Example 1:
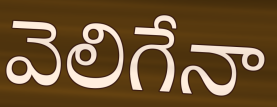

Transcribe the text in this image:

వెలిగేనా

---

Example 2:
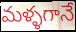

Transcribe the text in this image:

మళ్ళగానే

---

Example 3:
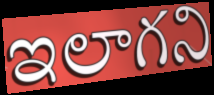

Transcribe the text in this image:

ఇలాగని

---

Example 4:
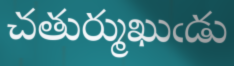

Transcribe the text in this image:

చతుర్ముఖుఁడు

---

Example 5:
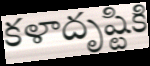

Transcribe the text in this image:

కళాదృష్టికి